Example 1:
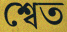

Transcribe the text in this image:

শ্বেত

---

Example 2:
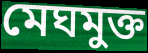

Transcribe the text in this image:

মেঘমুক্ত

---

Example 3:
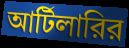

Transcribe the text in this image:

আর্টিলারির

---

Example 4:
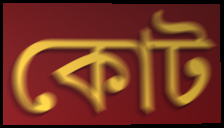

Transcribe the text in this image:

কোট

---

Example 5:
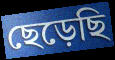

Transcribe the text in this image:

ছেড়েছি